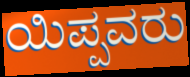
ಯಿಪ್ಪವರು